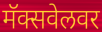
मॅक्सवेलवर